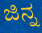
ಜಿನ್ನ